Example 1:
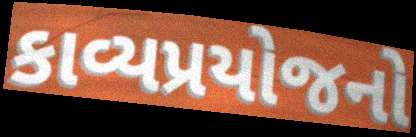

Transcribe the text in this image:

કાવ્યપ્રયોજનો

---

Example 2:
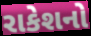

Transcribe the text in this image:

રાકેશનો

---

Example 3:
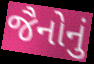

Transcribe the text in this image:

જૈનોનું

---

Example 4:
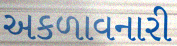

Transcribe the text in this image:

અકળાવનારી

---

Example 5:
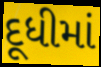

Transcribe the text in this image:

દૂધીમાં